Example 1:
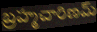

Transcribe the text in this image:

బ్రహ్మచారిణమ్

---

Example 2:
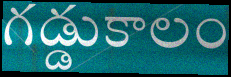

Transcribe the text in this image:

గడ్డుకాలం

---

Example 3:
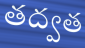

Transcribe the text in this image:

తద్వత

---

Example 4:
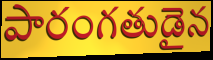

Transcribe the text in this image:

పారంగతుడైన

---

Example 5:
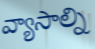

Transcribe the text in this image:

వ్యాసాల్ని